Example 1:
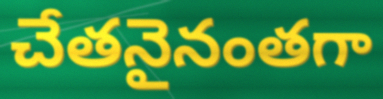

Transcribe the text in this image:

చేతనైనంతగా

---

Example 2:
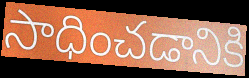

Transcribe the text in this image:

సాధించడానికి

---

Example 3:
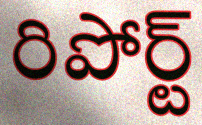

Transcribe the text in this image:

రిపోర్ట్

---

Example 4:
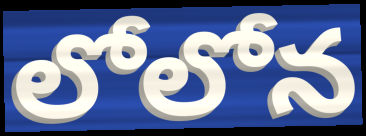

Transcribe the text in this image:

లోలోన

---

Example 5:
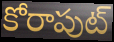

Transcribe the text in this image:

కోరాపుట్